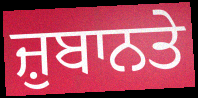
ਜ਼ੁਬਾਨਤੇ